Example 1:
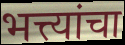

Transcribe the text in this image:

भत्त्यांचा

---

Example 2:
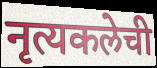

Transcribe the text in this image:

नृत्यकलेची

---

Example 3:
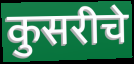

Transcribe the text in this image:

कुसरीचे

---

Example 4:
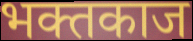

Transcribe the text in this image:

भक्तकाज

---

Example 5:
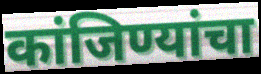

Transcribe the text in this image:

कांजिण्यांचा